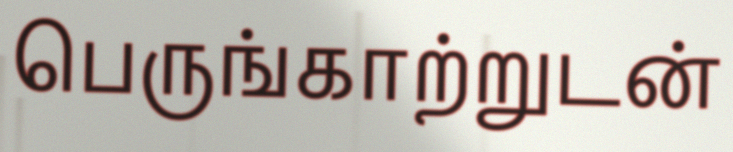
பெருங்காற்றுடன்